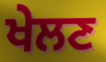
ਖੇਲਣ